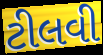
ટીલવી